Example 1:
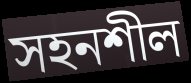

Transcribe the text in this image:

সহনশীল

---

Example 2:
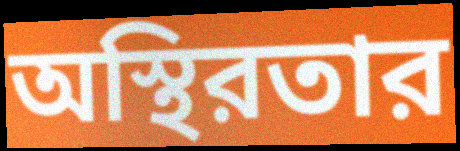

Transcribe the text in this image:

অস্থিরতার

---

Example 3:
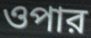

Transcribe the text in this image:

ওপার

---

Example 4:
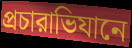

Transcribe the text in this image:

প্রচারাভিযানে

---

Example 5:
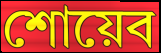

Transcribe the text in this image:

শোয়েব